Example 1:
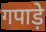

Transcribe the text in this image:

गपाड़े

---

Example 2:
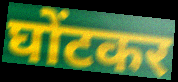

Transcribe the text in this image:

घोंटकर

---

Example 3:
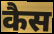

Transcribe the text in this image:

कैस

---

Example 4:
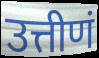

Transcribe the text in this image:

उत्तीणं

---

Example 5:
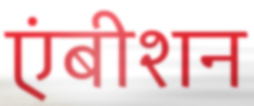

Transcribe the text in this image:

एंबीशन